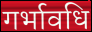
गर्भावधि